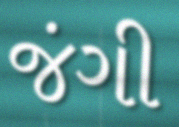
જંગી